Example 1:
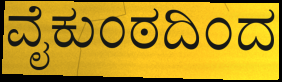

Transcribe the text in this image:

ವೈಕುಂಠದಿಂದ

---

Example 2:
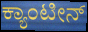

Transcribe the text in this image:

ಕ್ಯಾಂಟೀನ್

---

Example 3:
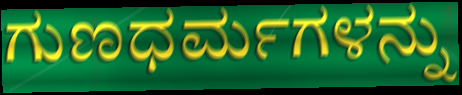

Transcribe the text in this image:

ಗುಣಧರ್ಮಗಳನ್ನು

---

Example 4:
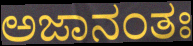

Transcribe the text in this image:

ಅಜಾನಂತಃ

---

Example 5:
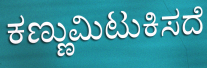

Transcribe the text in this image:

ಕಣ್ಣುಮಿಟುಕಿಸದೆ